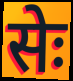
सेः